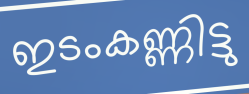
ഇടംകണ്ണിട്ടു